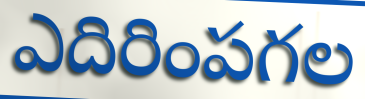
ఎదిరింపగల